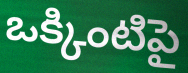
ఒక్కింటిపై